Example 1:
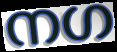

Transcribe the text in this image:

നഗ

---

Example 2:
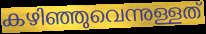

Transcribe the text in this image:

കഴിഞ്ഞുവെന്നുള്ളത്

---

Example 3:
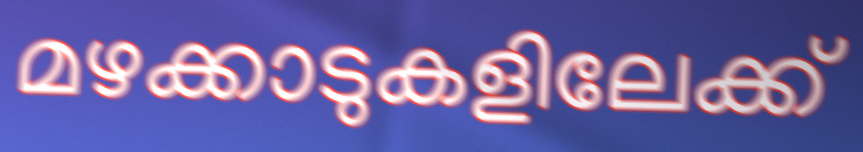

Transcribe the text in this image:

മഴക്കാടുകളിലേക്ക്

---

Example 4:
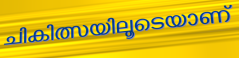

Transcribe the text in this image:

ചികിത്സയിലൂടെയാണ്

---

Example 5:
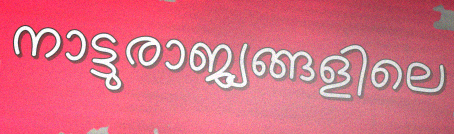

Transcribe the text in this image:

നാട്ടുരാജ്യങ്ങളിലെ